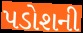
પડોશની